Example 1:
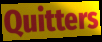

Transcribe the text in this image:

Quitters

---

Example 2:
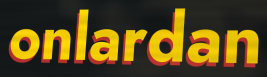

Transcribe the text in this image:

onlardan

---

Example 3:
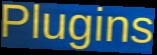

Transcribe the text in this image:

Plugins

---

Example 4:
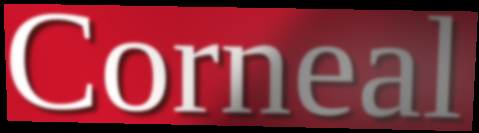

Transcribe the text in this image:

Corneal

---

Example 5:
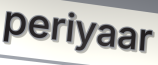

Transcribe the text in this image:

periyaar